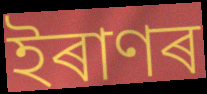
ইৰাণৰ